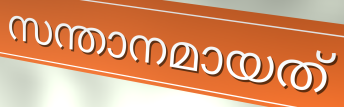
സന്താനമായത്